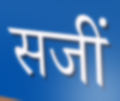
सजीं